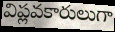
విప్లవకారులుగా